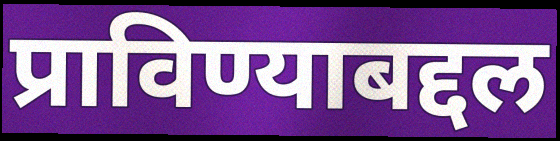
प्राविण्याबद्दल